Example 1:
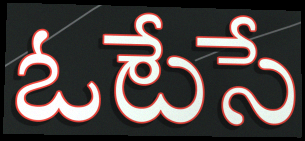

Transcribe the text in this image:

ఓటేసే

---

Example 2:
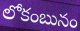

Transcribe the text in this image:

లోకంబునం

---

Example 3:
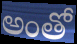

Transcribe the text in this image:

అంతో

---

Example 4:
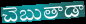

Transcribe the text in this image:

చెబుతాడా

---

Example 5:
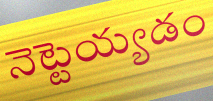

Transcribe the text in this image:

నెట్టెయ్యడం